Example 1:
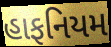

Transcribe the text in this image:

હાફનિયમ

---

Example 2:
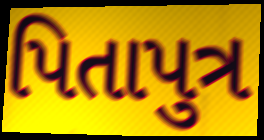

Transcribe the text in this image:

પિતાપુત્ર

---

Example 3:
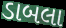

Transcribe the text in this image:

ડાબલા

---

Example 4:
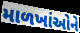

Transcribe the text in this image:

માળખાંઓને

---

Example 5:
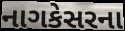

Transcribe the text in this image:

નાગકેસરના